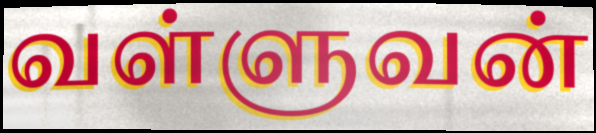
வள்ளுவன்